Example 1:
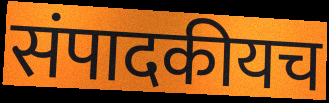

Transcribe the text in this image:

संपादकीयच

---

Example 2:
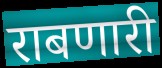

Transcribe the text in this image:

राबणारी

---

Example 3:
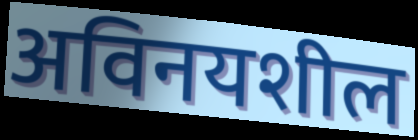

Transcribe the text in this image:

अविनयशील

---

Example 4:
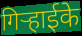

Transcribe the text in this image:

गिर्‍हाईके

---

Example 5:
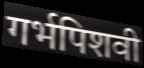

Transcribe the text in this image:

गर्भपिशवी